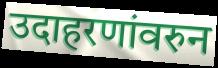
उदाहरणांवरुन